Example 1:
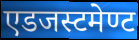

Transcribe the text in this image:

एडजस्टमेण्ट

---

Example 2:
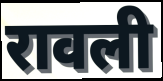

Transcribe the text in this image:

रावली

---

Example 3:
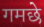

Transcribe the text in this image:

गमछे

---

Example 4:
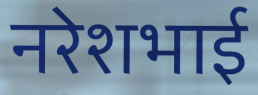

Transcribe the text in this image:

नरेशभाई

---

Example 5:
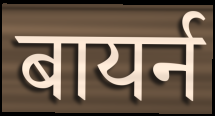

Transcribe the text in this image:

बायर्न